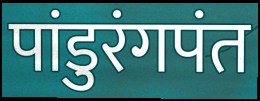
पांडुरंगपंत